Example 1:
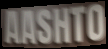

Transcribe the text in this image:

AASHTO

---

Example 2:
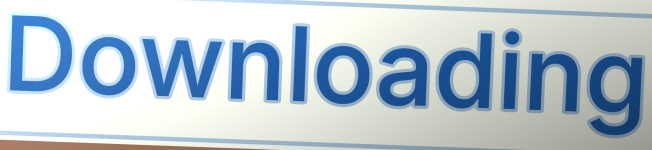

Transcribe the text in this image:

Downloading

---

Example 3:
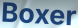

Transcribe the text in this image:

Boxer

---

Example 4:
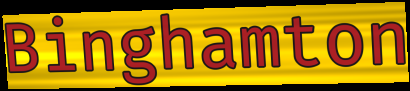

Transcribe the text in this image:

Binghamton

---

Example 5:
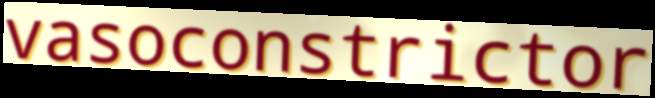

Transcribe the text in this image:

vasoconstrictor